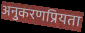
अनुकरणप्रियता